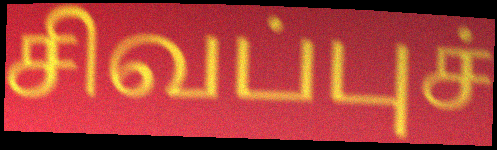
சிவப்புச்